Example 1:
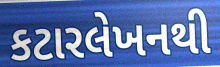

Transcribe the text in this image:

કટારલેખનથી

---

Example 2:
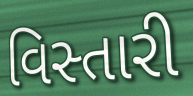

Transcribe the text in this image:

વિસ્તારી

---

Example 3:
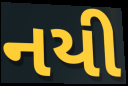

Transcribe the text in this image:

નયી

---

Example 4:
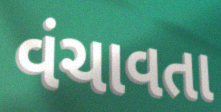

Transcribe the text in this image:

વંચાવતા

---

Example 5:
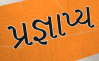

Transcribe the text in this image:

પ્રજ્ઞાપ્ય